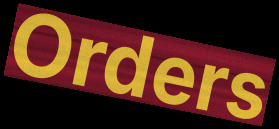
Orders